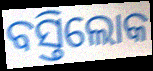
ବସ୍ତିଲୋକ